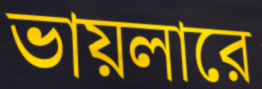
ভায়লারে